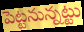
పెట్టనున్నట్టు